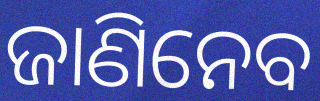
ଜାଣିନେବ